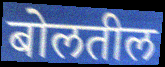
बोलतील